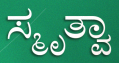
ಸ್ಮೃತ್ವಾ